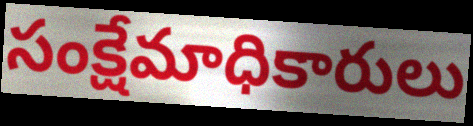
సంక్షేమాధికారులు